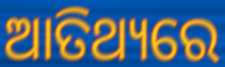
ଆତିଥ୍ୟରେ